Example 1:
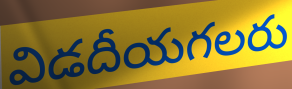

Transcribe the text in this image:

విడదీయగలరు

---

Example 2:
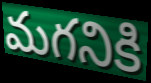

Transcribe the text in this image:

మగనికి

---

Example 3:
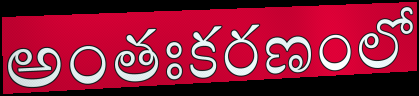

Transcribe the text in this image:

అంతఃకరణంలో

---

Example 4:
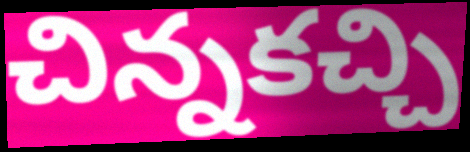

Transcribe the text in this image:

చిన్నకచ్చి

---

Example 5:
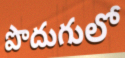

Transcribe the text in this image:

పొదుగులో